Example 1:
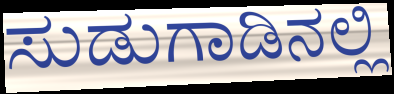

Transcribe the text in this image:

ಸುಡುಗಾಡಿನಲ್ಲಿ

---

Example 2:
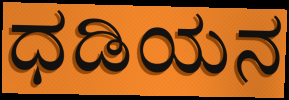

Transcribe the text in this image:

ಧಡಿಯನ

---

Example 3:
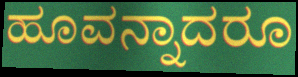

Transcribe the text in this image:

ಹೂವನ್ನಾದರೂ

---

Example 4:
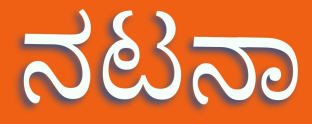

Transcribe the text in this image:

ನಟನಾ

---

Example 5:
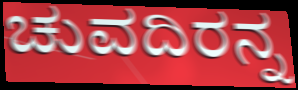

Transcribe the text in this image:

ಚುವದಿರನ್ನ